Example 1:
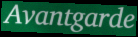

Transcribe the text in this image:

Avantgarde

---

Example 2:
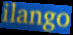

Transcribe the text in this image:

ilango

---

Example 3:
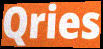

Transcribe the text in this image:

Qries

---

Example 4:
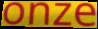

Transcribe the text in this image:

onze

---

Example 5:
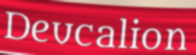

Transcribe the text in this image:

Deucalion